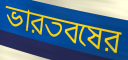
ভারতবষের